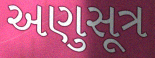
અણુસૂત્ર